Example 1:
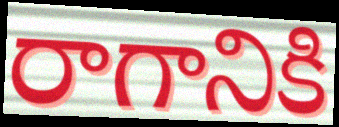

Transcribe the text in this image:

రాగానికి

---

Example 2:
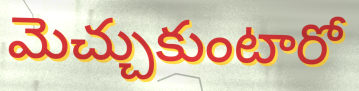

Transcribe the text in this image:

మెచ్చుకుంటారో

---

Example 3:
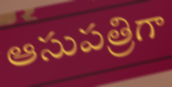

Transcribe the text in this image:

ఆసుపత్రిగా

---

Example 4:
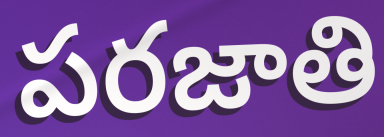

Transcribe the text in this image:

పరజాతి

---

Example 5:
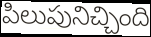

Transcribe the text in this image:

పిలుపునిచ్చింది